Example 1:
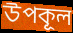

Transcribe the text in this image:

উপকূল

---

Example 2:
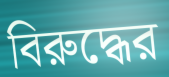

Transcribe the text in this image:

বিরুদ্ধের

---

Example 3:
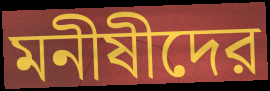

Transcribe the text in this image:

মনীষীদের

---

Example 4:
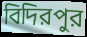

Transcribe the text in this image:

বিদিরপুর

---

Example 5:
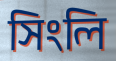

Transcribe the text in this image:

সিংলি